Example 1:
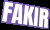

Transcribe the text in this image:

FAKIR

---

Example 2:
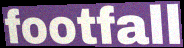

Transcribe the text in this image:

footfall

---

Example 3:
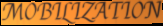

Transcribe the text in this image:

MOBILIZATION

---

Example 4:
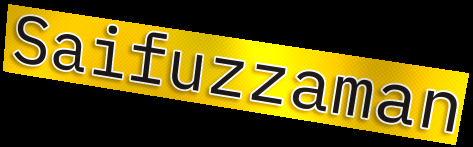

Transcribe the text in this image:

Saifuzzaman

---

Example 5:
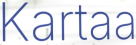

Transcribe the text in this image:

Kartaa